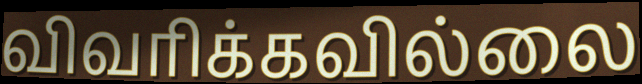
விவரிக்கவில்லை